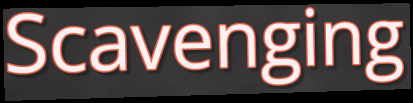
Scavenging